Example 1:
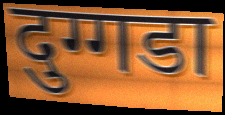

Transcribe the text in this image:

दुग्गडा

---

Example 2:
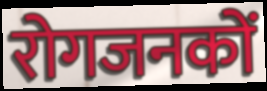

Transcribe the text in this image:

रोगजनकों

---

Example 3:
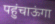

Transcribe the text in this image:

पहुंचाऊंगा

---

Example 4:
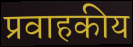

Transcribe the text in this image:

प्रवाहकीय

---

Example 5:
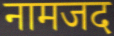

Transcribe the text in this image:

नामजद